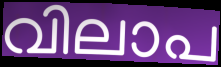
വിലാപ